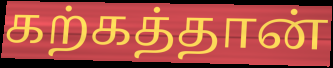
கற்கத்தான்